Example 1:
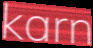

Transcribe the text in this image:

karn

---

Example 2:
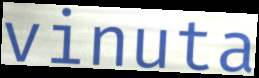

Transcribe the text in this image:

vinuta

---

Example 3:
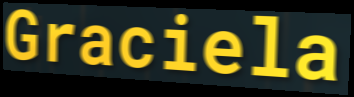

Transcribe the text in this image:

Graciela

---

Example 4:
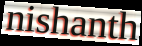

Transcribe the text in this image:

nishanth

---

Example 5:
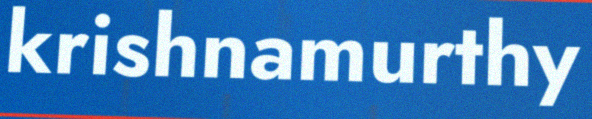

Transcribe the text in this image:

krishnamurthy